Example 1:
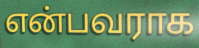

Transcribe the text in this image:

என்பவராக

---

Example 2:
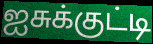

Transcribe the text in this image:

ஐசுக்குட்டி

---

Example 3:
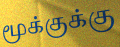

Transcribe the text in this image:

மூக்குக்கு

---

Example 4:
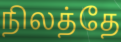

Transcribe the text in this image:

நிலத்தே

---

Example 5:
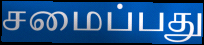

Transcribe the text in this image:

சமைப்பது